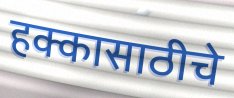
हक्कासाठीचे